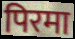
पिरमा